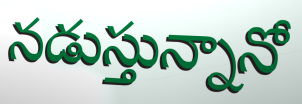
నడుస్తున్నానో